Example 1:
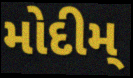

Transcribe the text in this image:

મોદીમ્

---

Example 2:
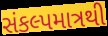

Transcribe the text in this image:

સંકલ્પમાત્રથી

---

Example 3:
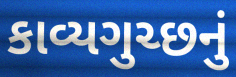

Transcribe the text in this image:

કાવ્યગુચ્છનું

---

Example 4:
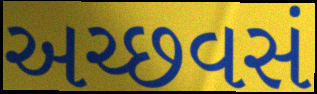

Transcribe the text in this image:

અચ્છવસં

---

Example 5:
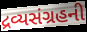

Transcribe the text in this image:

દ્રવ્યસંગ્રહની